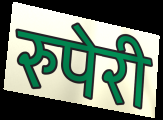
रुपेरी